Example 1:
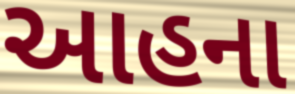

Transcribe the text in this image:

આહના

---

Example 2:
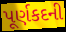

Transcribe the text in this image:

પૂર્ણકદની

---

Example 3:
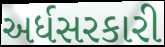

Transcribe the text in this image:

અર્ધસરકારી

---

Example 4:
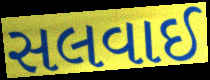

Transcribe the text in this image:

સલવાઈ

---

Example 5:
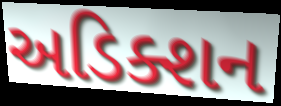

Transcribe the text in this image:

અડિક્શન